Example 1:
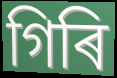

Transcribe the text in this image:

গিৰি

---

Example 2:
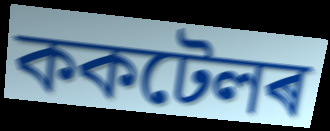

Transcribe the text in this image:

ককটেলৰ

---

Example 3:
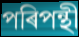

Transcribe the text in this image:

পৰিপন্থী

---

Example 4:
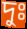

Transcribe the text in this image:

দুঃ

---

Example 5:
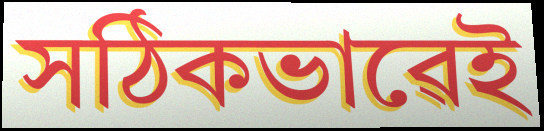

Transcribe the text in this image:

সঠিকভাৱেই